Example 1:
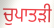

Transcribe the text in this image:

ਚੁਪਾਤੜੀ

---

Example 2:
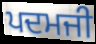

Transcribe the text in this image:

ਪਦਮਜੀ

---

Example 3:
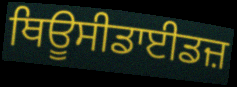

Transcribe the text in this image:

ਥਿਊਸੀਡਾਈਡਜ਼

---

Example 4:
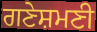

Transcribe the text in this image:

ਗਣੇਸ਼ਮਣੀ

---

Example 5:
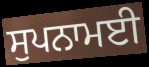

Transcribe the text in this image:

ਸੁਪਨਾਮਈ